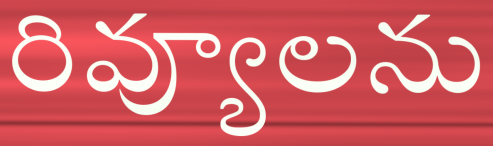
రివ్యూలను